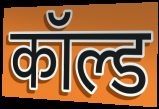
कॉल्ड